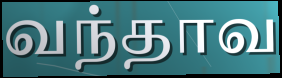
வந்தாவ